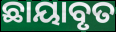
ଛାୟାବୃତ